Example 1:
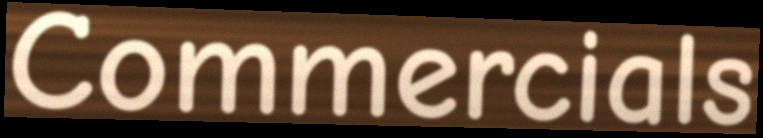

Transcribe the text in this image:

Commercials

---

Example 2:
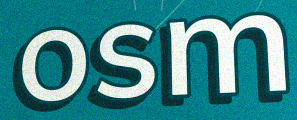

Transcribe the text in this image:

osm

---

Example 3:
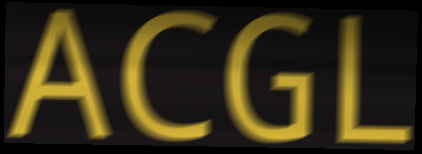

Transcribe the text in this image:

ACGL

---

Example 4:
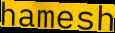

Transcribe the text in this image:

hamesh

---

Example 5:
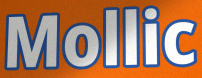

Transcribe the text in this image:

Mollic